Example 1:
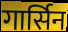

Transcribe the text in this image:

गार्सिन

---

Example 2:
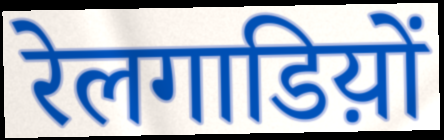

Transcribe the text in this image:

रेलगाडिय़ों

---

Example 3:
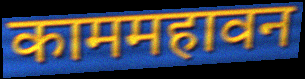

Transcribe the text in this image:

काममहावन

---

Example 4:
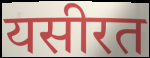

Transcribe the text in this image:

यसीरत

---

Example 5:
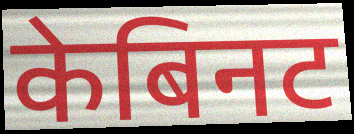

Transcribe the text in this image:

केबिनट